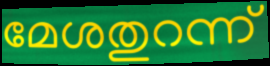
മേശതുറന്ന്